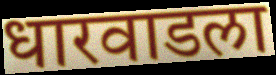
धारवाडला